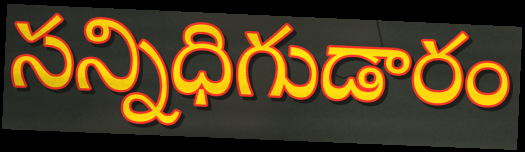
సన్నిధిగుడారం